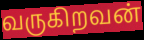
வருகிறவன்